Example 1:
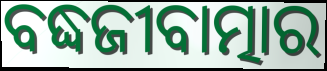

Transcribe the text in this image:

ବଦ୍ଧଜୀବାତ୍ମାର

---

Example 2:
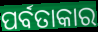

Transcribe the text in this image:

ପର୍ବତାକାର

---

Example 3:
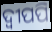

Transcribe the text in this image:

ଦ୍ବୀପପି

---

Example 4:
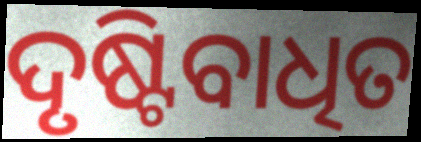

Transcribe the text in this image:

ଦୃଷ୍ଟିବାଧିତ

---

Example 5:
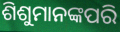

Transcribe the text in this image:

ଶିଶୁମାନଙ୍କପରି